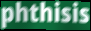
phthisis